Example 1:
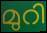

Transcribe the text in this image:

മുറി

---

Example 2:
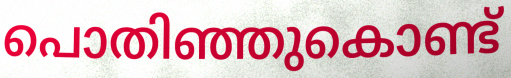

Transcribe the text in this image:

പൊതിഞ്ഞുകൊണ്ട്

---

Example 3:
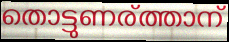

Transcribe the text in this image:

തൊട്ടുണര്ത്താന്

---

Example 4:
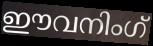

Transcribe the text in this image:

ഈവനിംഗ്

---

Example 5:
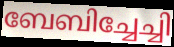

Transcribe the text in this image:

ബേബിച്ചേച്ചി